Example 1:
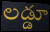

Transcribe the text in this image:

లడ్డూ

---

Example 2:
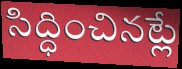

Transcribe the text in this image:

సిద్ధించినట్లే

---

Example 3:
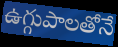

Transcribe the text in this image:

ఉగ్గుపాలతోనే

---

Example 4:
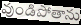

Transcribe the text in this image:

వుండిపోతాను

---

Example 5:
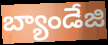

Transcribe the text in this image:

బ్యాండేజి